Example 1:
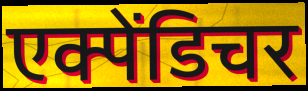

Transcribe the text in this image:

एक्पेंडिचर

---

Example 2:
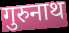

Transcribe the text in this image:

गुरुनाथ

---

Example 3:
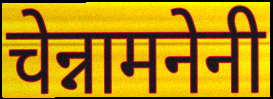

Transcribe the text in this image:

चेन्नामनेनी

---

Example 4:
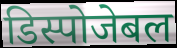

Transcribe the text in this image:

डिस्पोजेबल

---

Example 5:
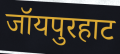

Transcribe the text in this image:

जॉयपुरहाट